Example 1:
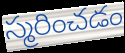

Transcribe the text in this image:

స్మరించడం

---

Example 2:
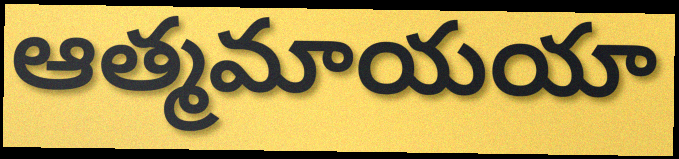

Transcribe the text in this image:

ఆత్మమాయయా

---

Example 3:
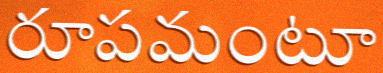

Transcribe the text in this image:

రూపమంటూ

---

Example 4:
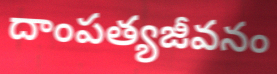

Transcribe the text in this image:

దాంపత్యజీవనం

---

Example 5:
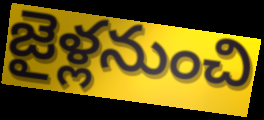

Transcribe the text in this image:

జైళ్లనుంచి